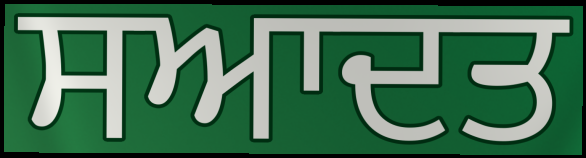
ਸਆਦਤ